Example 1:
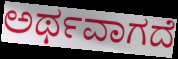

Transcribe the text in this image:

ಅರ್ಥವಾಗದೆ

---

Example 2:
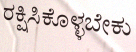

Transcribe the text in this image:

ರಕ್ಷಿಸಿಕೊಳ್ಳಬೇಕು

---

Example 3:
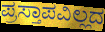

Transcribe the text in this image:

ಪ್ರಸ್ತಾಪವಿಲ್ಲದ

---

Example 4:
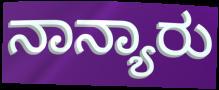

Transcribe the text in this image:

ನಾನ್ಯಾರು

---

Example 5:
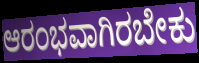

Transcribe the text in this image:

ಆರಂಭವಾಗಿರಬೇಕು